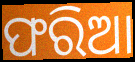
ଫରିଆ